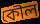
কৌল